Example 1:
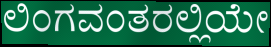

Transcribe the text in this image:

ಲಿಂಗವಂತರಲ್ಲಿಯೇ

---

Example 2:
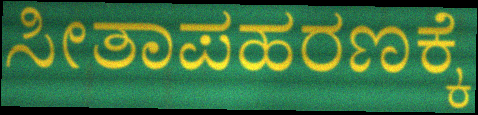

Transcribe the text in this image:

ಸೀತಾಪಹರಣಕ್ಕೆ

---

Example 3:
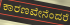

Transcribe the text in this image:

ಕಾರಣವೇನೆಂದರೆ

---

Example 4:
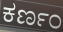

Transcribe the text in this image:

ಕರ್ಣಂ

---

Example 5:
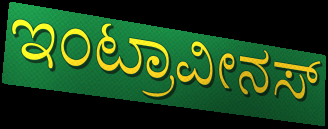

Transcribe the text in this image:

ಇಂಟ್ರಾವೀನಸ್